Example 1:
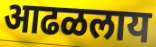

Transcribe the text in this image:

आढळलाय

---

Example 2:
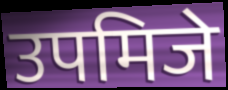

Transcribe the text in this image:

उपमिजे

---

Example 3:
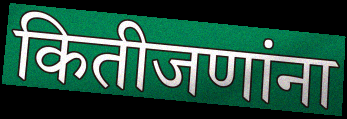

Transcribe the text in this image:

कितीजणांना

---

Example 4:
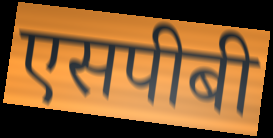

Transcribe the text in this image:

एसपीबी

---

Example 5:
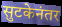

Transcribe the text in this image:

सुटकेनंतर